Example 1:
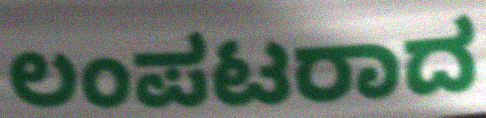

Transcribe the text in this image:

ಲಂಪಟರಾದ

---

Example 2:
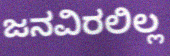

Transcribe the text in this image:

ಜನವಿರಲಿಲ್ಲ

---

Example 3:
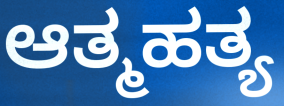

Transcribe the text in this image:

ಆತ್ಮಹತ್ಯ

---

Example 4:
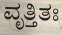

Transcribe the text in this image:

ವೃತ್ತಿತಃ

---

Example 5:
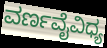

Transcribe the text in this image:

ವರ್ಣವೈವಿಧ್ಯ